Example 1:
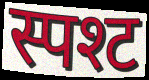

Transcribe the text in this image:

स्पश्ट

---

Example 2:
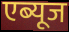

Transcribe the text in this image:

एब्यूज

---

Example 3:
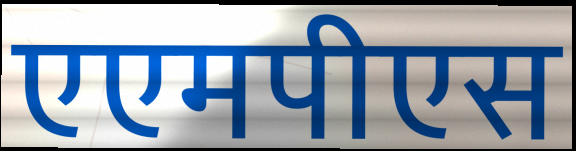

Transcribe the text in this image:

एएमपीएस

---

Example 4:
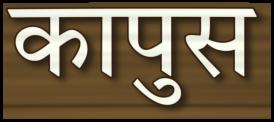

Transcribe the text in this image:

कापुस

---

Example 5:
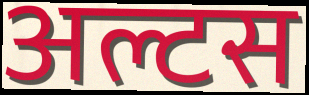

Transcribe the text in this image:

अल्टस